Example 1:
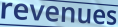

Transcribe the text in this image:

revenues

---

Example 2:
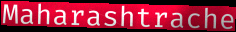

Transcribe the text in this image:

Maharashtrache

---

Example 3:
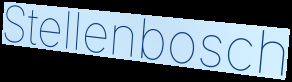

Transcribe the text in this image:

Stellenbosch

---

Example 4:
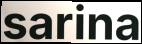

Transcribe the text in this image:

sarina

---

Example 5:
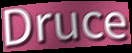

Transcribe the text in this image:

Druce